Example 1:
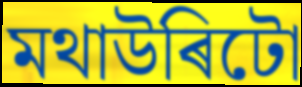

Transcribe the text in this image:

মথাউৰিটো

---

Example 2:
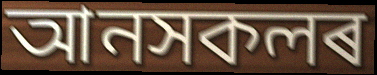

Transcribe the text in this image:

আনসকলৰ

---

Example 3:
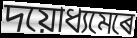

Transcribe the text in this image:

দয়োধ্যমেৰে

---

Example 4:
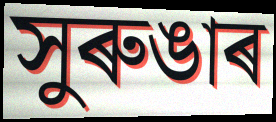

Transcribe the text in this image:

সুৰুঙাৰ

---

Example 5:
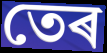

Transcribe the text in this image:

তেৰ